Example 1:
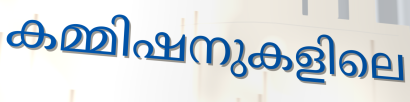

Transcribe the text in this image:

കമ്മിഷനുകളിലെ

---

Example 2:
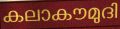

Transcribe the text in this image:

കലാകൗമുദി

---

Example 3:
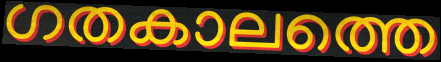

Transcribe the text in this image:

ഗതകാലത്തെ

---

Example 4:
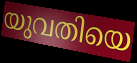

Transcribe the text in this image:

യുവതിയെ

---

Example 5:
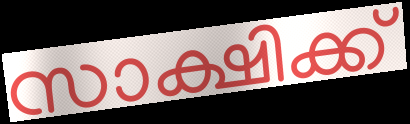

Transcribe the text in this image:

സാക്ഷിക്ക്